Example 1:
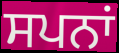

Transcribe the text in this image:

ਸਪਨਾਂ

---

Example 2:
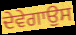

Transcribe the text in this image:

ਦੇਵੇਗਾਉਸ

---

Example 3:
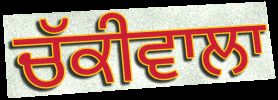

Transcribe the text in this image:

ਚੱਕੀਵਾਲਾ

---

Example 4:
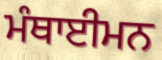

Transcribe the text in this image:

ਮੰਥਾਈਮਨ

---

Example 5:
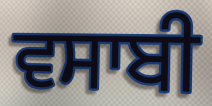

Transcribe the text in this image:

ਵਸਾਬੀ